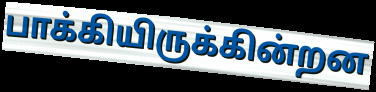
பாக்கியிருக்கின்றன